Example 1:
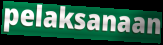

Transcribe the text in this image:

pelaksanaan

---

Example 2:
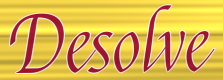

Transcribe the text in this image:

Desolve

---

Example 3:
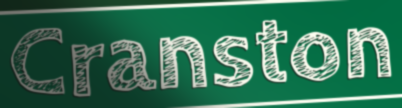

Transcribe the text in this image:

Cranston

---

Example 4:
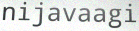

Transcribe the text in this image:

nijavaagi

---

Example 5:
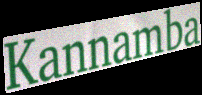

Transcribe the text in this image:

Kannamba